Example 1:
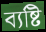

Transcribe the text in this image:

ব্যষ্টি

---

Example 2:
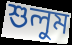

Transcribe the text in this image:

শুলুম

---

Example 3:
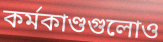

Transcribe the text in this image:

কর্মকাণ্ডগুলোও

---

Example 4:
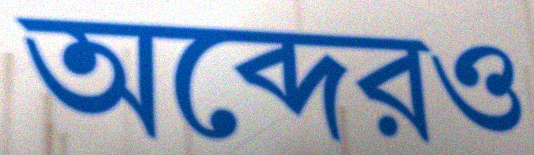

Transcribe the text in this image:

অব্দেরও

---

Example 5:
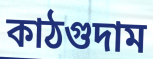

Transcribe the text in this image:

কাঠগুদাম